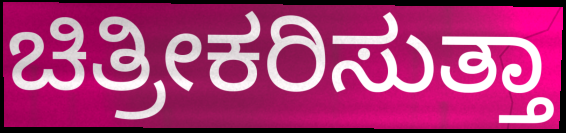
ಚಿತ್ರೀಕರಿಸುತ್ತಾ